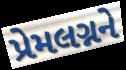
પ્રેમલગ્નને